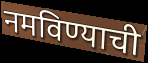
नमविण्याची